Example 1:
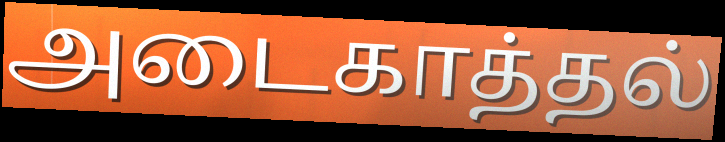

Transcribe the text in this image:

அடைகாத்தல்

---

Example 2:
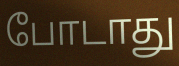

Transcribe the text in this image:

போடாது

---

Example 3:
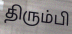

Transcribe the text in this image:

திரும்பி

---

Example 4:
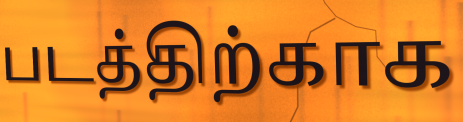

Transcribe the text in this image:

படத்திற்காக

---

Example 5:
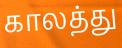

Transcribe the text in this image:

காலத்து